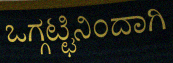
ಒಗ್ಗಟ್ಟಿನಿಂದಾಗಿ